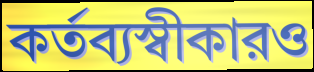
কর্তব্যস্বীকারও